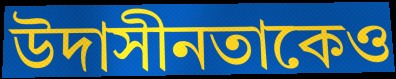
উদাসীনতাকেও